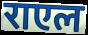
राएल